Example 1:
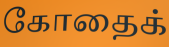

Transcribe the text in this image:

கோதைக்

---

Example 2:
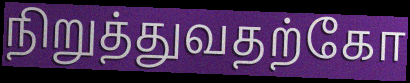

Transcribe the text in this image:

நிறுத்துவதற்கோ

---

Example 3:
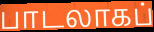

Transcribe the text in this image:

பாடலாகப்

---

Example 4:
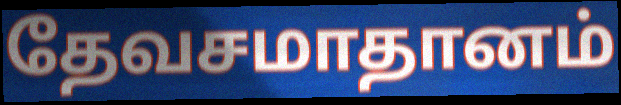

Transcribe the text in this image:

தேவசமாதானம்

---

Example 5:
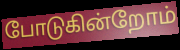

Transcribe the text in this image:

போடுகின்றோம்